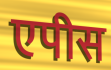
एपीस